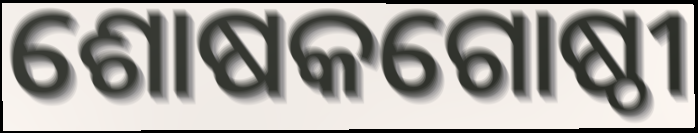
ଶୋଷକଗୋଷ୍ଠୀ